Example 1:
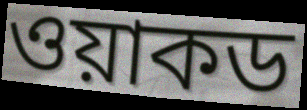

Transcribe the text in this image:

ওয়াকড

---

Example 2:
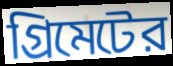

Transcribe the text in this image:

গ্রিমেটের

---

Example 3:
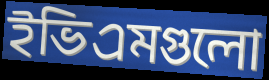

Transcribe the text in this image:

ইভিএমগুলো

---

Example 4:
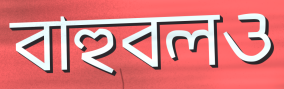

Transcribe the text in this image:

বাহুবলও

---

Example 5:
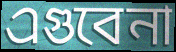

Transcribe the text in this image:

এগুবেনা